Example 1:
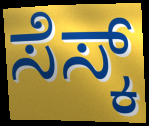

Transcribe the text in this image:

ಸೆಸ್ಕ್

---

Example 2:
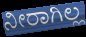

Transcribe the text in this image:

ನೀರಾಗಿಲ್ಲ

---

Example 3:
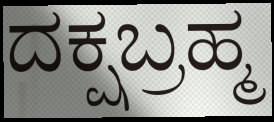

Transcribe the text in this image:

ದಕ್ಷಬ್ರಹ್ಮ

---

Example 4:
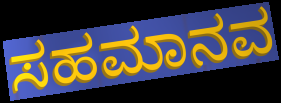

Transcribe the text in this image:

ಸಹಮಾನವ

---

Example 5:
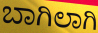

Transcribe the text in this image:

ಬಾಗಿಲಾಗಿ